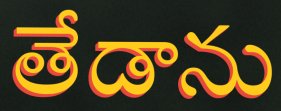
తేడాను